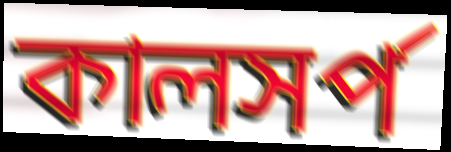
কালসর্প